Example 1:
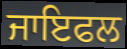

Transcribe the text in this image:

ਜਾਇਫਲ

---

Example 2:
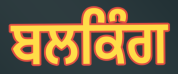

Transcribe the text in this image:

ਬਲਕਿੰਗ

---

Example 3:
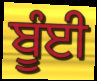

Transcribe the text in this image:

ਬੂੰਈ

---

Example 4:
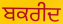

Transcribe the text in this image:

ਬਕਰੀਦ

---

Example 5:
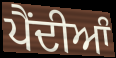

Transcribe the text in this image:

ਪੈੰਦੀਆੰ